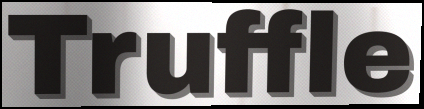
Truffle